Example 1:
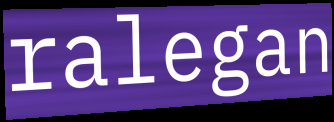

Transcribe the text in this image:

ralegan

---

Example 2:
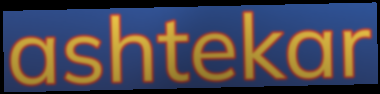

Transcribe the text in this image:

ashtekar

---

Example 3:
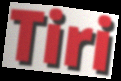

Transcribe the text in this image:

Tiri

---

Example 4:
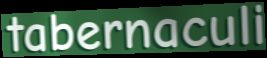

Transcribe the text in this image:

tabernaculi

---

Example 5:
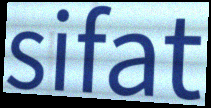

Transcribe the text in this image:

sifat